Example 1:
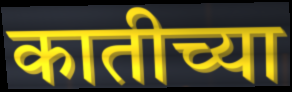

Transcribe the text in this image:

कातीच्या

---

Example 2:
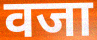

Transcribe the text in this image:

वजा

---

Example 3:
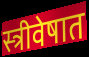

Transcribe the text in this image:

स्त्रीवेषात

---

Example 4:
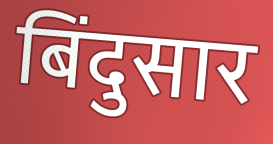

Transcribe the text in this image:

बिंदुसार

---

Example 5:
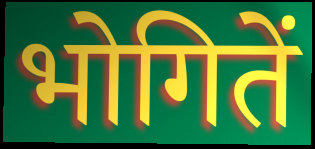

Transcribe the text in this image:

भोगितें